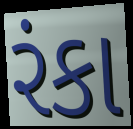
રંકા